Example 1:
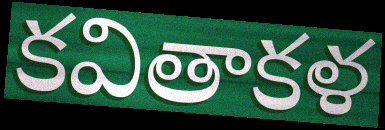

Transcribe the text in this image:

కవితాకళ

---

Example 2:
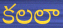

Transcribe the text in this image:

కలలా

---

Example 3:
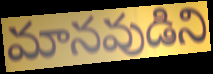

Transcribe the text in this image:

మానవుడిని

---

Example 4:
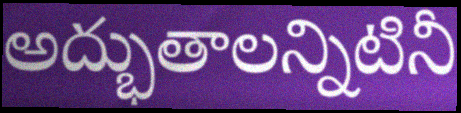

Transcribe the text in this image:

అద్భుతాలన్నిటినీ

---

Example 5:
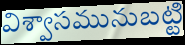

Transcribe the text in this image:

విశ్వాసమునుబట్టి